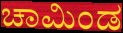
ಚಾಮಿಂಡ